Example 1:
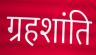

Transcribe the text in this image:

ग्रहशांति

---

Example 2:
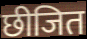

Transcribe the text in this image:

छीजित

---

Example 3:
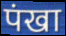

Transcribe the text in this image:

पंखा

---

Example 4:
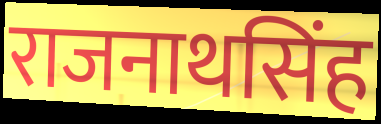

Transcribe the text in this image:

राजनाथसिंह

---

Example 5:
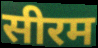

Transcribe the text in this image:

सीरम